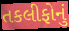
તકલીફોનું